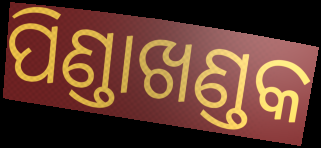
ପିଣ୍ଡାଖଣ୍ଡକ